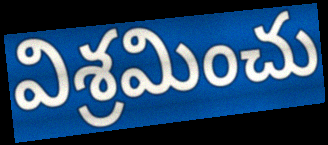
విశ్రమించు